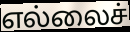
எல்லைச்